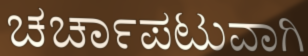
ಚರ್ಚಾಪಟುವಾಗಿ